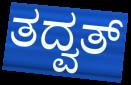
ತದ್ವತ್